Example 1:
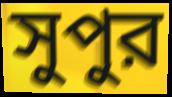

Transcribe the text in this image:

সুপুর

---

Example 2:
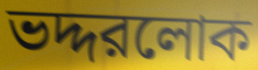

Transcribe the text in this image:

ভদ্দরলোক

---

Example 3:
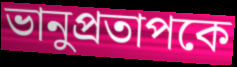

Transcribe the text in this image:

ভানুপ্রতাপকে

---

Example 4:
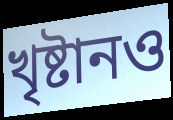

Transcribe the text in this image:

খৃষ্টানও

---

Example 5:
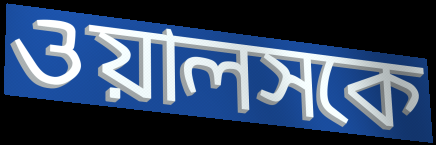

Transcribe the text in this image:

ওয়ালসকে